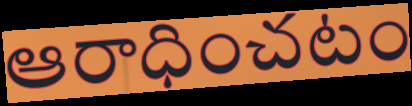
ఆరాధించటం